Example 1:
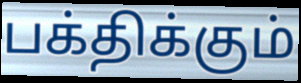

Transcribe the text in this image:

பக்திக்கும்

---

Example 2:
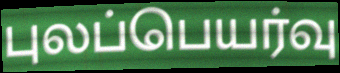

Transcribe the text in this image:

புலப்பெயர்வு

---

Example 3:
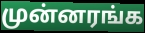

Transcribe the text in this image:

முன்னரங்க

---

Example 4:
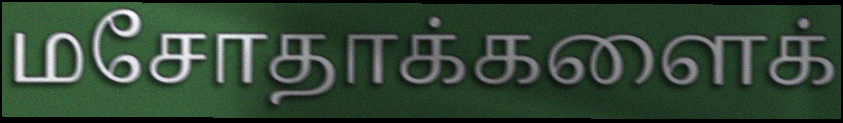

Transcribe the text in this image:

மசோதாக்களைக்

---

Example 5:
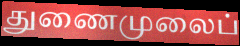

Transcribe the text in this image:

துணைமுலைப்